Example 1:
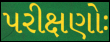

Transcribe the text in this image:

પરીક્ષણોઃ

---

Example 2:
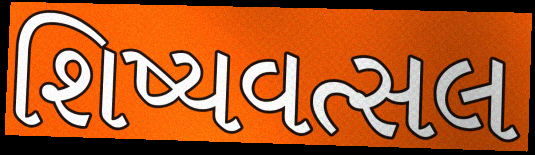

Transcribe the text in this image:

શિષ્યવત્સલ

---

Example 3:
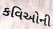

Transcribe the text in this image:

કવિઓની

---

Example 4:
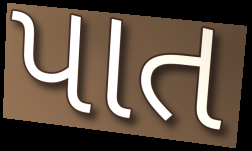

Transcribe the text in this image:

પાત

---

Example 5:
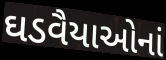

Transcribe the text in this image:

ઘડવૈયાઓનાં